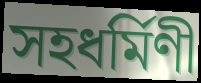
সহধর্মিণী